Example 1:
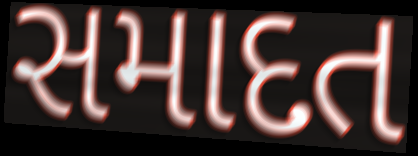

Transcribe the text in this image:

સમાદત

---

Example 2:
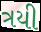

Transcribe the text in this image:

ત્રયી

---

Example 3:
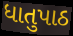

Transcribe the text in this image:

ધાતુપાઠ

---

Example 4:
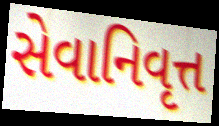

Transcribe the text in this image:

સેવાનિવૃત્ત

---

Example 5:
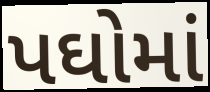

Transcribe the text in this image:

પઘોમાં